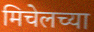
मिचेलच्या